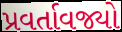
પ્રવર્તાવજ્યો